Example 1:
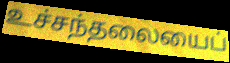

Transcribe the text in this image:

உச்சந்தலையைப்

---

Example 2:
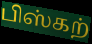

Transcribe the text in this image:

பிஸ்கற்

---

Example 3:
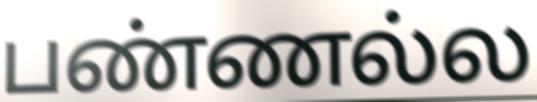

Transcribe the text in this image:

பண்ணல்ல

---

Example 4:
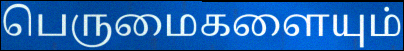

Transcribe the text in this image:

பெருமைகளையும்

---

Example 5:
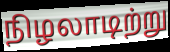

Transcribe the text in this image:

நிழலாடிற்று